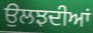
ਉਲਝਦੀਆਂ